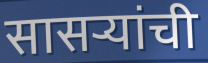
सासऱ्यांची